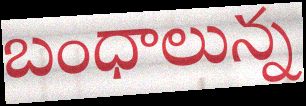
బంధాలున్న